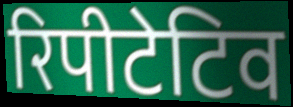
रिपीटेटिव